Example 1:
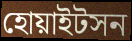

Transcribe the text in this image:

হোয়াইটসন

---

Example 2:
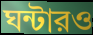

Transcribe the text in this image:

ঘন্টারও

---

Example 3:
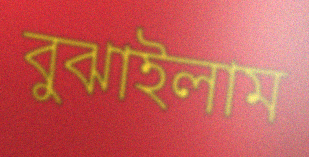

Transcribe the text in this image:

বুঝাইলাম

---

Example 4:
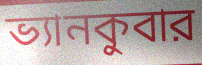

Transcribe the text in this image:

ভ্যানকুবার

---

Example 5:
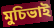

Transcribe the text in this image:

মুচিভাই